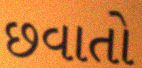
છવાતો